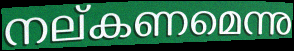
നല്‌കണമെന്നു